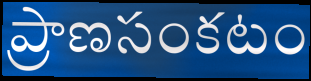
ప్రాణసంకటం